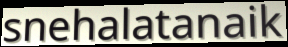
snehalatanaik